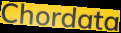
Chordata